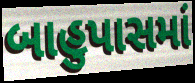
બાહુપાસમાં